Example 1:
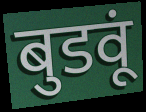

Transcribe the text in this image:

बुडवूं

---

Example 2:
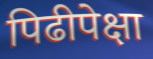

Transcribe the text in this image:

पिढीपेक्षा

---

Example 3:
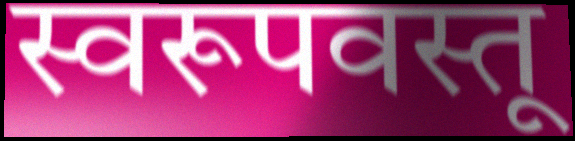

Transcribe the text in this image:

स्वरूपवस्तू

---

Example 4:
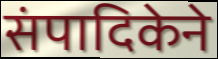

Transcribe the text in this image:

संपादिकेने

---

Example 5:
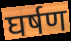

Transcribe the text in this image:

घर्षण